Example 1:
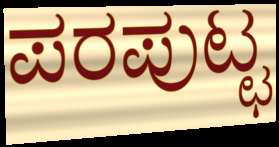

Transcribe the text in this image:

ಪರಪುಟ್ಟ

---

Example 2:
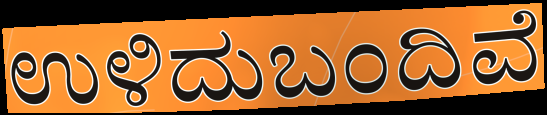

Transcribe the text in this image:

ಉಳಿದುಬಂದಿವೆ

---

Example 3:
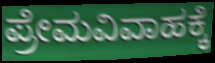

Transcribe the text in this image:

ಪ್ರೇಮವಿವಾಹಕ್ಕೆ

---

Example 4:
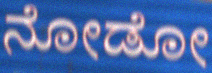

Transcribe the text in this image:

ನೋಡೋ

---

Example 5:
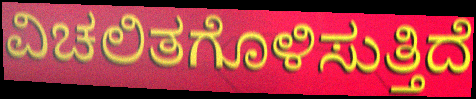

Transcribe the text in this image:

ವಿಚಲಿತಗೊಳಿಸುತ್ತಿದೆ